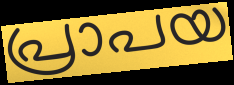
പ്രാപയ